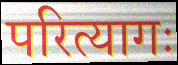
परित्यागः